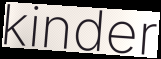
kinder